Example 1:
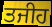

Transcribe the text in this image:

ਤਜੀਹ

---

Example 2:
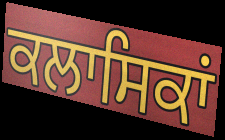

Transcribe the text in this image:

ਕਲਾਸਿਕਾਂ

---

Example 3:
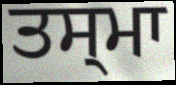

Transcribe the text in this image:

ਤਸ੍ਮਾ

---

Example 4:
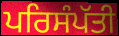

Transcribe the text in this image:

ਪਰਿਸੰਪੱਤੀ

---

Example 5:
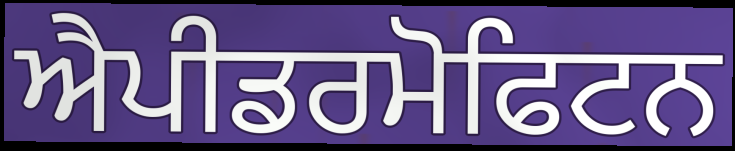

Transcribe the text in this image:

ਐਪੀਡਰਮੋਫਿਟਨ